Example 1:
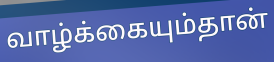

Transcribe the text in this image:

வாழ்க்கையும்தான்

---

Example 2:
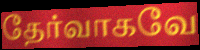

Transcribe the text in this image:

தேர்வாகவே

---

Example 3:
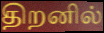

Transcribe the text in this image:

திறனில்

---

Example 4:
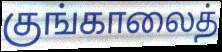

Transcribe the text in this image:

குங்காலைத்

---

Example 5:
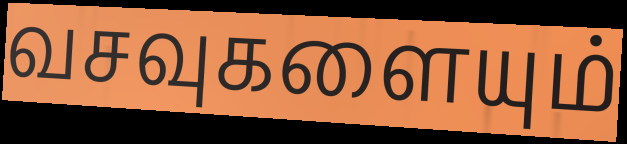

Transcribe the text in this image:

வசவுகளையும்